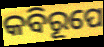
କବିରୂପେ